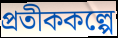
প্রতীককল্পে